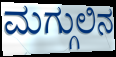
ಮಗ್ಗುಲಿನ